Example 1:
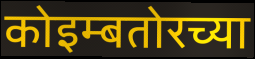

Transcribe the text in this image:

कोइम्बतोरच्या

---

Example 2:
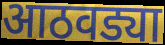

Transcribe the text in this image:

आठवड्या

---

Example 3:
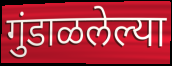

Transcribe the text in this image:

गुंडाळलेल्या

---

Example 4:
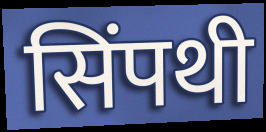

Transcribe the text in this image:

सिंपथी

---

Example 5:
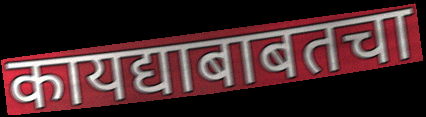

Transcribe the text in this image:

कायद्याबाबतचा